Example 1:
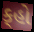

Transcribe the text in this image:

ક્‌હો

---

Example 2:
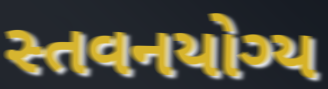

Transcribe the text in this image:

સ્તવનયોગ્ય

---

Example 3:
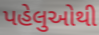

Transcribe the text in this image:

પહેલુઓથી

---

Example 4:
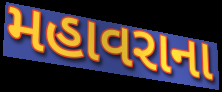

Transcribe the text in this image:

મહાવરાના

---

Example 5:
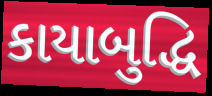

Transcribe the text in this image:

કાયાબુદ્ધિ